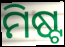
ମିଷ୍ଟ